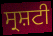
ਸ੍ਰਸ਼ਟੀ